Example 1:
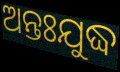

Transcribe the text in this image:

ଅନ୍ତଃଯୁଦ୍ଧ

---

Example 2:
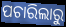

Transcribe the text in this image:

ପଚାରିଲାରୁ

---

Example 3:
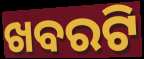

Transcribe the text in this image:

ଖବରଟି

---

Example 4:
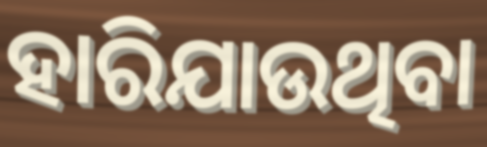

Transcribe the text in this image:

ହାରିଯାଉଥିବା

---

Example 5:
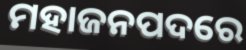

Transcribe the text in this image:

ମହାଜନପଦରେ